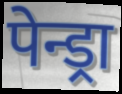
पेन्ड्रा